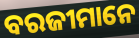
ବରଜୀମାନେ